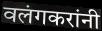
वलंगकरांनी